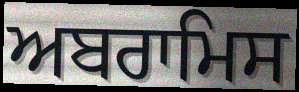
ਅਬਰਾਮਿਸ